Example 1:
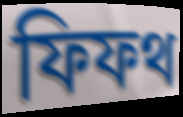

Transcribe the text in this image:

ফিফথ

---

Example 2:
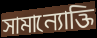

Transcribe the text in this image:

সামান্যোক্তি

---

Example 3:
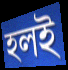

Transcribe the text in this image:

হলই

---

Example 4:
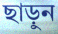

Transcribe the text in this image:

ছাড়ুন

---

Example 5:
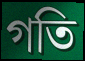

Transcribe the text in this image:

গতি